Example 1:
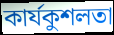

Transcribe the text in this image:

কাৰ্যকুশলতা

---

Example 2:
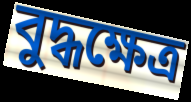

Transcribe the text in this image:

বুদ্ধক্ষেত্ৰ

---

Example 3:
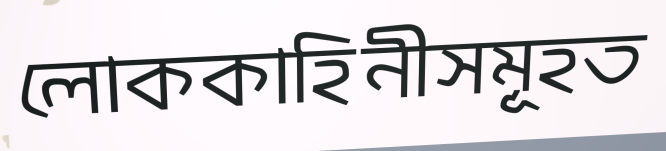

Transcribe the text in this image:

লোককাহিনীসমূহত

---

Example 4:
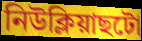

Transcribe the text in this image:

নিউক্লিয়াছটো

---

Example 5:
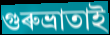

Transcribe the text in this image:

গুৰুভ্ৰাতাই